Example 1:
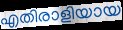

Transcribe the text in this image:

എതിരാളിയായ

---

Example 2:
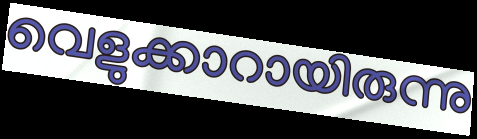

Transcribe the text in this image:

വെളുക്കാറായിരുന്നു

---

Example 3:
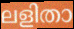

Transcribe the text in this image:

ലളിതാ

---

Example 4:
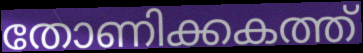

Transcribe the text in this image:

തോണിക്കകത്ത്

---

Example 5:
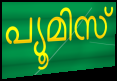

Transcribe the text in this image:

പ്യൂമിസ്